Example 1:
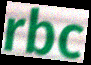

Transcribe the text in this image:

rbc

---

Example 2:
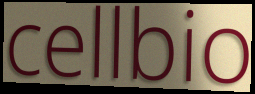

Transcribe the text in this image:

cellbio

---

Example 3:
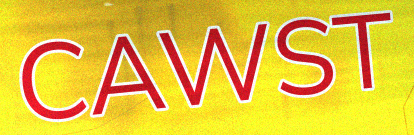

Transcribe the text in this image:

CAWST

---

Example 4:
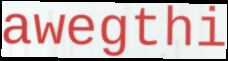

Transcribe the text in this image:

awegthi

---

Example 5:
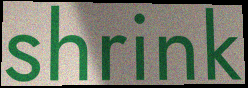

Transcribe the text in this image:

shrink